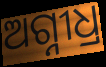
ଅଗ୍ନୀଧ୍ର